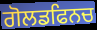
ਗੋਲਡਫਿਨਚ